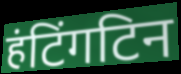
हंटिंगटिन